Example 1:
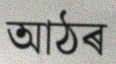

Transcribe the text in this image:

আঠৰ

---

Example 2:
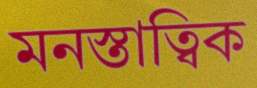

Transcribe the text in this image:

মনস্তাত্বিক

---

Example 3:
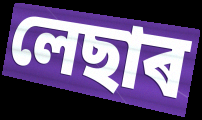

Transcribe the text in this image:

লেছাৰ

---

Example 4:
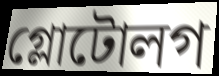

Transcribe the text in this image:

গ্লোটোলগ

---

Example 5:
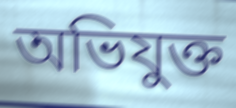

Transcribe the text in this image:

অভিযুক্ত